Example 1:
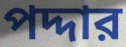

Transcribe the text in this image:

পদ্দার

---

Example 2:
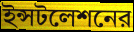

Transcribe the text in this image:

ইন্সটলেশনের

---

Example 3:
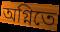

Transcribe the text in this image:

অগ্নিতে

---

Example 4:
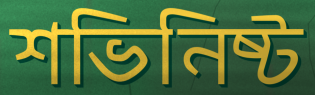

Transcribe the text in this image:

শভিনিষ্ট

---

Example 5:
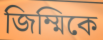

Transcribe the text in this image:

জিম্মিকে